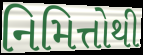
નિમિત્તોથી